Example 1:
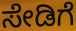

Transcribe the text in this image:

ಸೇಡಿಗೆ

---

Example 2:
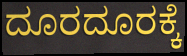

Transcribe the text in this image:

ದೂರದೂರಕ್ಕೆ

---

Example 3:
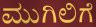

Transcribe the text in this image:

ಮುಗಿಲಿಗೆ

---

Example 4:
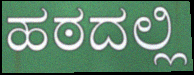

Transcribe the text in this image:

ಹಠದಲ್ಲಿ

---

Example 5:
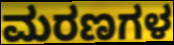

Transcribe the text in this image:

ಮರಣಗಳ